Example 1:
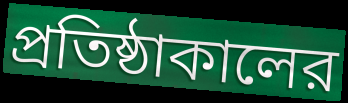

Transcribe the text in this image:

প্রতিষ্ঠাকালের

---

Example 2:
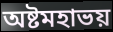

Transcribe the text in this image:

অষ্টমহাভয়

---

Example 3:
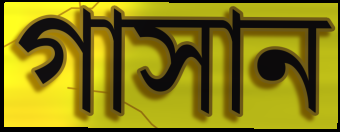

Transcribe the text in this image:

গাসান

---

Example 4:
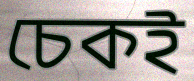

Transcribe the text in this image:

চেকই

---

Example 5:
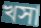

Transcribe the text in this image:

খসা